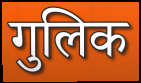
गुलिक